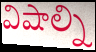
విషాల్ని